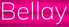
Bellay